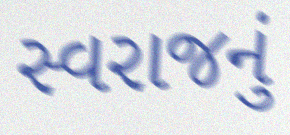
સ્વરાજનું